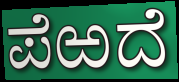
ಪೆಱದೆ